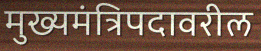
मुख्यमंत्रिपदावरील